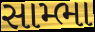
સામ્ભા